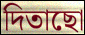
দিতাছো